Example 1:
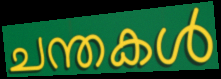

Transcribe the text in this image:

ചന്തകൾ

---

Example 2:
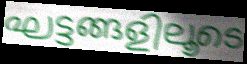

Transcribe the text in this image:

ഘട്ടങ്ങളിലൂടെ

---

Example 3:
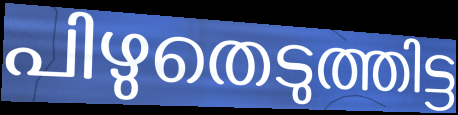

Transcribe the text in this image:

പിഴുതെടുത്തിട്ട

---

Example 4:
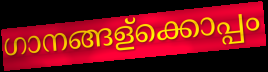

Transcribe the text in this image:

ഗാനങ്ങള്ക്കൊപ്പം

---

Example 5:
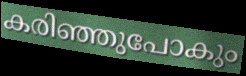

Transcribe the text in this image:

കരിഞ്ഞുപോകും